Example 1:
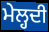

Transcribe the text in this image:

ਮੇਲ੍ਹਦੀ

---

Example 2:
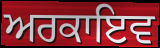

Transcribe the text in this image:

ਅਰਕਾਇਵ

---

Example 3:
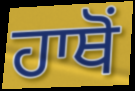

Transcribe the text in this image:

ਹਾਥੋਂ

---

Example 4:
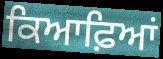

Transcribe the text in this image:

ਕਿਆਫ਼ਿਆਂ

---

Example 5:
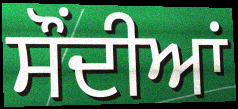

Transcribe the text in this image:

ਸੌਂਦੀਆਂ